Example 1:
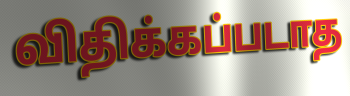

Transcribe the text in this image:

விதிக்கப்படாத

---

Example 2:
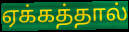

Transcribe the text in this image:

ஏக்கத்தால்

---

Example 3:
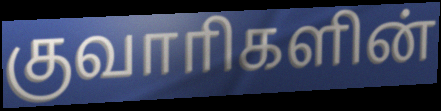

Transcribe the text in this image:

குவாரிகளின்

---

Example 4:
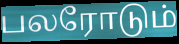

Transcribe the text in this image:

பலரோடும்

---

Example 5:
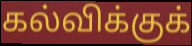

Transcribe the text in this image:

கல்விக்குக்